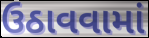
ઉઠાવવામાં